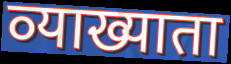
व्‍याख्‍याता